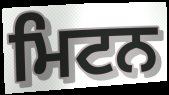
ਮਿਟਨ